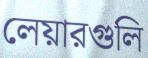
লেয়ারগুলি